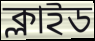
ক্লাইড